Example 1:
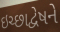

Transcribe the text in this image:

ઇચ્છાદ્વેષને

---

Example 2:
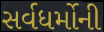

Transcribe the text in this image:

સર્વધર્મોની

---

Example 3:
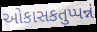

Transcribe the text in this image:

ઓકાસકતુપ્પન્નં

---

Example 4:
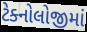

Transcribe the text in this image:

ટેક્નોલોજીમાં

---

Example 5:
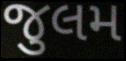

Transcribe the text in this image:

જુલમ